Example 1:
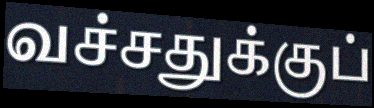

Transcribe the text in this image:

வச்சதுக்குப்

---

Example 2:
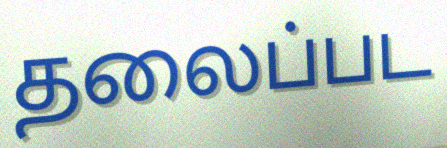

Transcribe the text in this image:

தலைப்பட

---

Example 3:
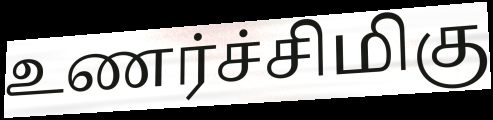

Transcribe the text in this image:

உணர்ச்சிமிகு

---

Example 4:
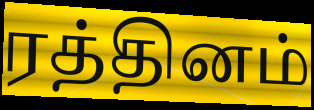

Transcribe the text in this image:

ரத்தினம்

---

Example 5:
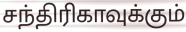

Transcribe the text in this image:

சந்திரிகாவுக்கும்